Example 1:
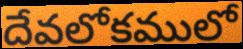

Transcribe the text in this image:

దేవలోకములో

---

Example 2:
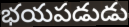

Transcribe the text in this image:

భయపడుడు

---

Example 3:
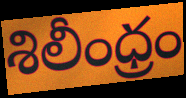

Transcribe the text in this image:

శిలీంధ్రం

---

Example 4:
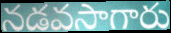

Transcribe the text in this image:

నడవసాగారు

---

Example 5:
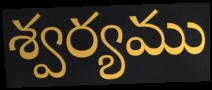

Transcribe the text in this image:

శ్వర్యము